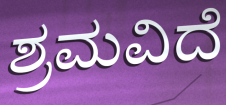
ಶ್ರಮವಿದೆ